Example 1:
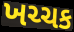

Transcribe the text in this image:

ખચ્ચક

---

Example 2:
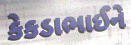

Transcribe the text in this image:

કેકડાભાઈને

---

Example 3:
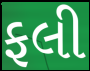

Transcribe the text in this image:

ફલી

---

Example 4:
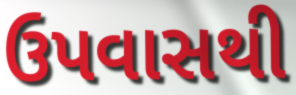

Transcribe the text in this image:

ઉપવાસથી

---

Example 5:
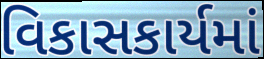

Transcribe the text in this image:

વિકાસકાર્યમાં